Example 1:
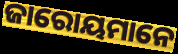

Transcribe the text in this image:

ଜାରୋୟମାନେ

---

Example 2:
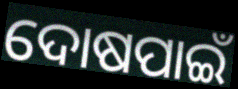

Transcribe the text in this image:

ଦୋଷପାଇଁ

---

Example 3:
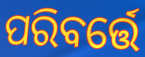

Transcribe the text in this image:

ପରିବର୍ତ୍ତେ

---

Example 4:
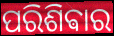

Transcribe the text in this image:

ପରିଶିଵାର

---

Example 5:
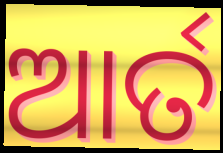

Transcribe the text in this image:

ଆର୍ତ